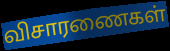
விசாரணைகள்